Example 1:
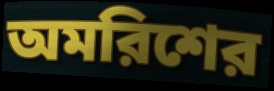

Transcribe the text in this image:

অমরিশের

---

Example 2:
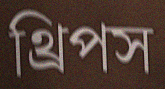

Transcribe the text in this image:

থ্রিপস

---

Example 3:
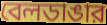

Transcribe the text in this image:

বেলডাঙার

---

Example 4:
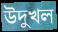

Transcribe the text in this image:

উদুখল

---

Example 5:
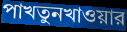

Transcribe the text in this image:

পাখতুনখাওয়ার